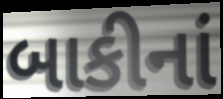
બાકીનાં